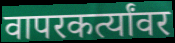
वापरकर्त्यांवर